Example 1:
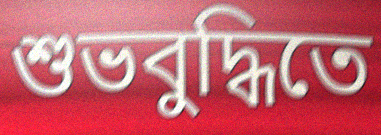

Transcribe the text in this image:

শুভবুদ্ধিতে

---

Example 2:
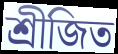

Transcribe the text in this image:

শ্রীজিত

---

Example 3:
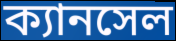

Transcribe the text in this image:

ক্যানসেল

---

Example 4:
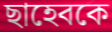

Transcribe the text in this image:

ছাহেবকে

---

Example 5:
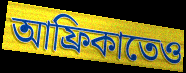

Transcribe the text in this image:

আফ্রিকাতেও